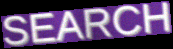
SEARCH